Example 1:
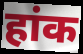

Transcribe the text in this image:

हांक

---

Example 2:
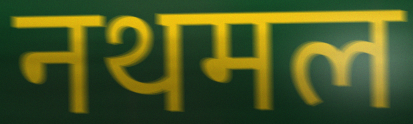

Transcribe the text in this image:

नथमल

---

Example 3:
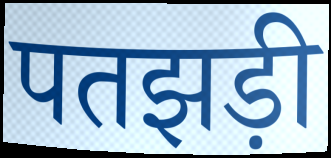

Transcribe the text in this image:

पतझड़ी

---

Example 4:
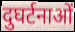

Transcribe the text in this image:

दुघर्टनाओं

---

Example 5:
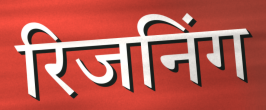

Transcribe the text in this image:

रिजनिंग